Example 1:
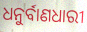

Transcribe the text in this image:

ଧନୁର୍ବାଣଧାରୀ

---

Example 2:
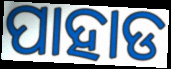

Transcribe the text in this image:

ପାହାଡ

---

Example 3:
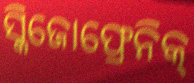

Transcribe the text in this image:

ସ୍କିଜୋଫ୍ରେନିକ୍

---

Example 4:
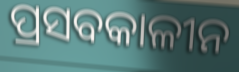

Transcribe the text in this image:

ପ୍ରସବକାଳୀନ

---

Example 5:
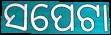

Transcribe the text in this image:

ସପେଟା